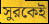
সুরকেই